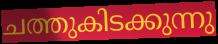
ചത്തുകിടക്കുന്നു